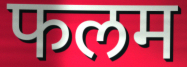
फलम